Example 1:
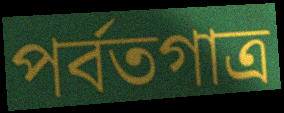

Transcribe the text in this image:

পর্বতগাত্র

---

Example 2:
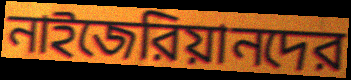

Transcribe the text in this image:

নাইজেরিয়ানদের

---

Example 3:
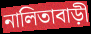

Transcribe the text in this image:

নালিতাবাড়ী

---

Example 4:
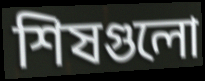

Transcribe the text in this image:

শিষগুলো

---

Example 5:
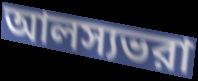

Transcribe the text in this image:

আলস্যভরা